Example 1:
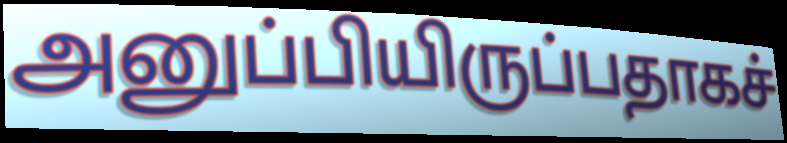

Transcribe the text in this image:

அனுப்பியிருப்பதாகச்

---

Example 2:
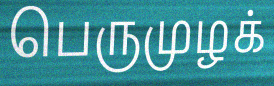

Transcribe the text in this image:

பெருமுழக்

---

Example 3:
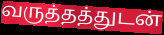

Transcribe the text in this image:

வருத்தத்துடன்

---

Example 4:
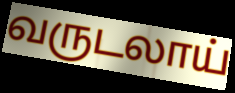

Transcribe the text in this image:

வருடலாய்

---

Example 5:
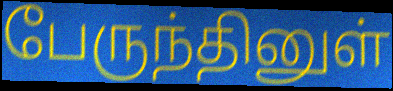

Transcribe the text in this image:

பேருந்தினுள்